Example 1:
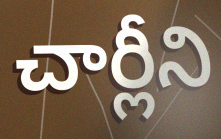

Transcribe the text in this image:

చార్లీని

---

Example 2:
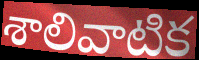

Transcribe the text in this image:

శాలివాటిక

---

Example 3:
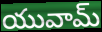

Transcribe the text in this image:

యువామ్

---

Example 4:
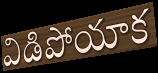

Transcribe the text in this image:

విడిపోయాక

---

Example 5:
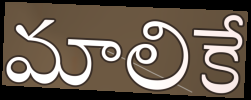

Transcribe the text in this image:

మాలికే